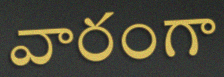
వారంగా